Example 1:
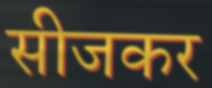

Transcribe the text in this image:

सीजकर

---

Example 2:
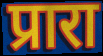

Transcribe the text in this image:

प्रारा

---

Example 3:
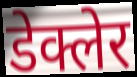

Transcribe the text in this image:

डेक्लेर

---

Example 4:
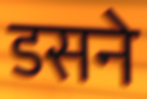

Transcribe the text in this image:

डसने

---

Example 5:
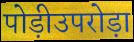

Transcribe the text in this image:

पोड़ीउपरोड़ा